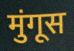
मुंगूस